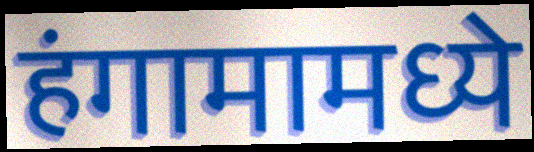
हंगामामध्ये